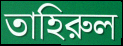
তাহিরুল